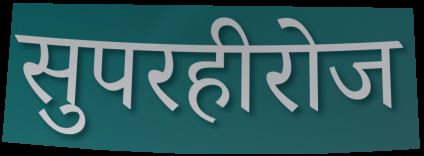
सुपरहीरोज